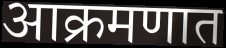
आक्रमणात